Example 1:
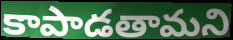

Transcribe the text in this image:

కాపాడతామని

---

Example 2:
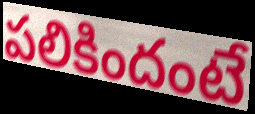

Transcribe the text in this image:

పలికిందంటే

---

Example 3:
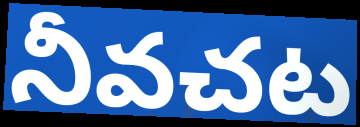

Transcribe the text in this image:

నీవచట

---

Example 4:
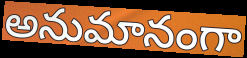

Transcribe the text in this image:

అనుమానంగా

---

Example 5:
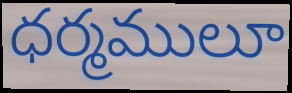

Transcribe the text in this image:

ధర్మములూ